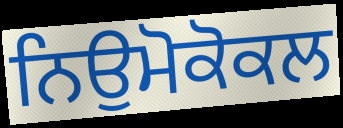
ਨਿਉਮੋਕੋਕਲ